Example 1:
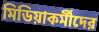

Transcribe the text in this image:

মিডিয়াকর্মীদের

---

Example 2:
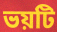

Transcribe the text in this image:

ভয়টি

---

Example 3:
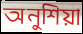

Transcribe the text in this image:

অনুশিয়া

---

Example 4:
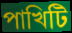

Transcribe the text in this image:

পাখিটি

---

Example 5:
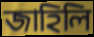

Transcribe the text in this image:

জাহিলি